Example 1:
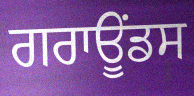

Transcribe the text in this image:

ਗਰਾਊਂਡਸ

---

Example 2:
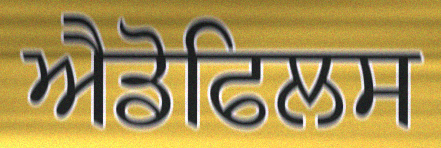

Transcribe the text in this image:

ਐਡੋਫਿਲਸ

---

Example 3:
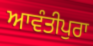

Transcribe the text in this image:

ਆਵੰਤੀਪੁਰਾ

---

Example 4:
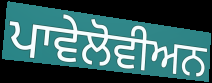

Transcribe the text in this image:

ਪਾਵੇਲੋਵੀਅਨ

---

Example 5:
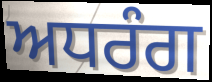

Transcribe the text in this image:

ਅਧਰੰਗ